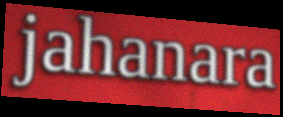
jahanara